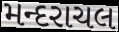
મન્દરાચલ